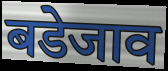
बडेजाव